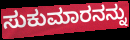
ಸುಕುಮಾರನನ್ನು